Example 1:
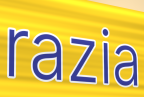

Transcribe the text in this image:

razia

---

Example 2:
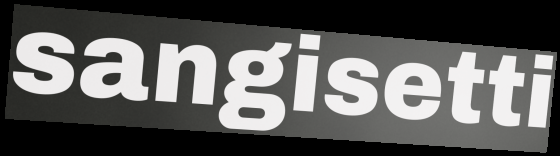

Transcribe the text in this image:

sangisetti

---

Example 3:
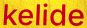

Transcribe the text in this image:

kelide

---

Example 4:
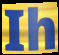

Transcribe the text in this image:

Ih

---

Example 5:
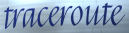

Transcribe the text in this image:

traceroute